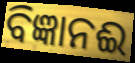
ବିଜ୍ଞାନଈ